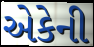
એકેની